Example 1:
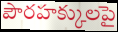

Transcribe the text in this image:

పౌరహక్కులపై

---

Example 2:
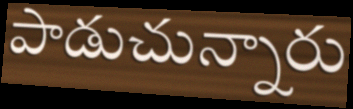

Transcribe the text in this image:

పాడుచున్నారు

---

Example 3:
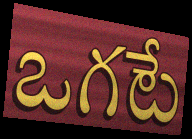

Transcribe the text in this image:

ఒగటే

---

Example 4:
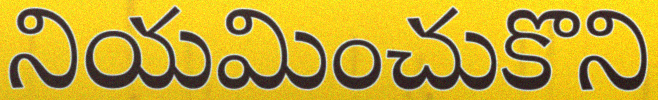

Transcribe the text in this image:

నియమించుకొని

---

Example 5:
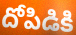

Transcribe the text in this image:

దోపిడికి